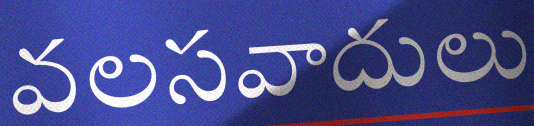
వలసవాదులు